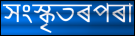
সংস্কৃতৰপৰা